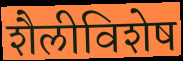
शैलीविशेष